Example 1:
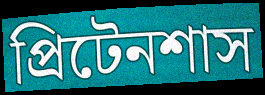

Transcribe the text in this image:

প্রিটেনশাস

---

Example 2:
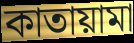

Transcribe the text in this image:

কাতায়ামা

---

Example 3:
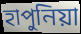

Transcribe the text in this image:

হাপুনিয়া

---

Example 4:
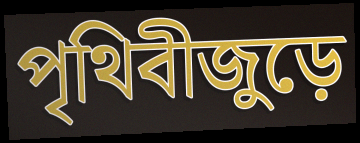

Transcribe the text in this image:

পৃথিবীজুড়ে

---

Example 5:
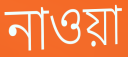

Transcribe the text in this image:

নাওয়া